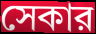
সেকার